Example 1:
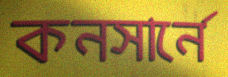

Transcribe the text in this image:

কনসার্নে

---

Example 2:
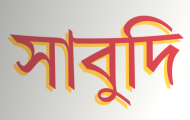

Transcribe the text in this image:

সাবুদি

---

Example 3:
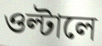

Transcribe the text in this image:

ওল্টালে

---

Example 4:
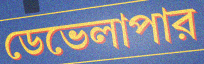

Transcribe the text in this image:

ডেভেলাপার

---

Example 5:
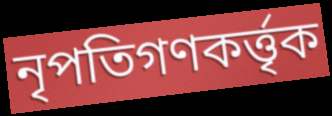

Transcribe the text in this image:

নৃপতিগণকর্ত্তৃক